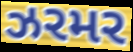
ઝરમર